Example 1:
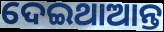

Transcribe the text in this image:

ଦେଇଥାଆନ୍ତ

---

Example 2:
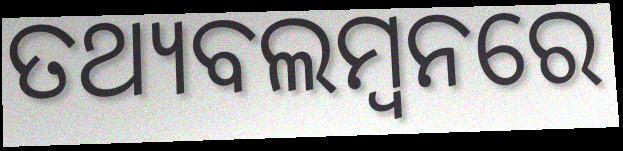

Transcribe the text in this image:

ତଥ୍ୟବଲମ୍ବନରେ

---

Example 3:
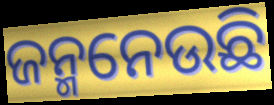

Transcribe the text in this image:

ଜନ୍ମନେଉଛି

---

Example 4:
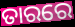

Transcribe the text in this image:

ତାରରେ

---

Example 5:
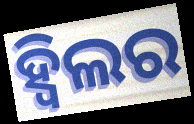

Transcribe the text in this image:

ହ୍ୱିଲର